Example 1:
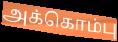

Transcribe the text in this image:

அக்கொம்பு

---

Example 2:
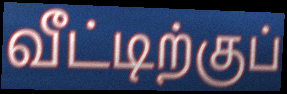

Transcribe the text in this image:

வீட்டிற்குப்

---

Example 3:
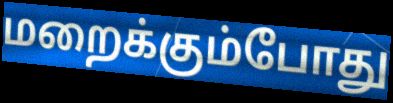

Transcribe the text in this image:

மறைக்கும்போது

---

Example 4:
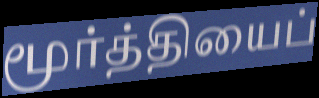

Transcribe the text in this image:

மூர்த்தியைப்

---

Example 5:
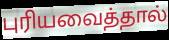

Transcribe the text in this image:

புரியவைத்தால்